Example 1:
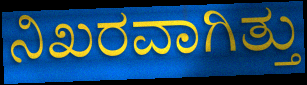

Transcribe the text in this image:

ನಿಖರವಾಗಿತ್ತು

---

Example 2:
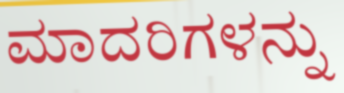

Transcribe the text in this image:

ಮಾದರಿಗಳನ್ನು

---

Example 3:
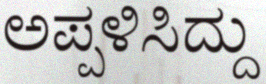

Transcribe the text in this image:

ಅಪ್ಪಳಿಸಿದ್ದು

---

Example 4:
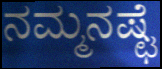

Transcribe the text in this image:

ನಮ್ಮನಷ್ಟೆ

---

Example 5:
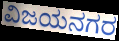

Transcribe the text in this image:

ವಿಜಯನಗರ